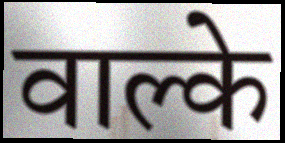
वाल्के